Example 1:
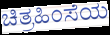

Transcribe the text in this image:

ಚಿತ್ರಹಿಂಸೆಯ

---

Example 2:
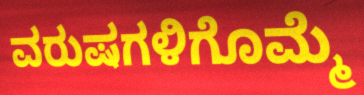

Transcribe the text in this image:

ವರುಷಗಳಿಗೊಮ್ಮೆ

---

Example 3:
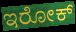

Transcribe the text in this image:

ಇರೋಕ್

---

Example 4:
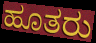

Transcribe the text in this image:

ಹೂತರು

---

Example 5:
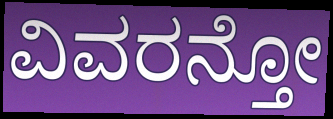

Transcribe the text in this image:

ವಿವರನ್ತೋ